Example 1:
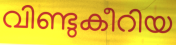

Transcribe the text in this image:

വിണ്ടുകീറിയ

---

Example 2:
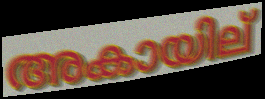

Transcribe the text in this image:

അകായില്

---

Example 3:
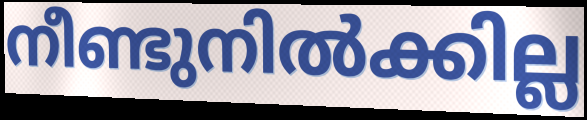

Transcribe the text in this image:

നീണ്ടുനിൽക്കില്ല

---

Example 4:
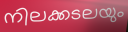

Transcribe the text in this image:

നിലക്കടലയും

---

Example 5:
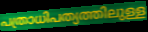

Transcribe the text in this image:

പത്രാധിപത്യത്തിലുള്ള